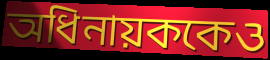
অধিনায়ককেও